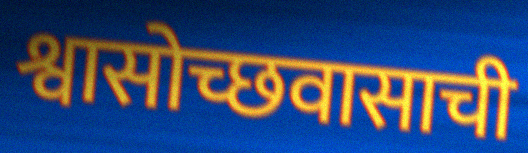
श्वासोच्छवासाची